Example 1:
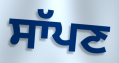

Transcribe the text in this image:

ਸਾੱਪਣ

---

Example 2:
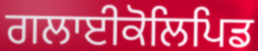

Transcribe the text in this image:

ਗਲਾਈਕੋਲਿਪਿਡ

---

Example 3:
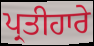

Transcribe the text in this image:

ਪ੍ਰਤੀਹਾਰੇ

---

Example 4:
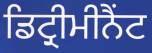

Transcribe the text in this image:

ਡਿਟ੍ਰੀਮੀਨੈਂਟ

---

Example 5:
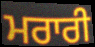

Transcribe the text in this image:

ਮਰਾਰੀ